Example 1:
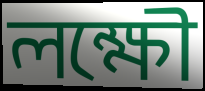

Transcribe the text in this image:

লক্ষৌ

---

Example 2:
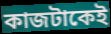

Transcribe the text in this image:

কাজটাকেই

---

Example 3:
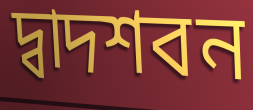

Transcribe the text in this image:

দ্বাদশবন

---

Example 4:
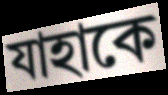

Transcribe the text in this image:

যাহাকে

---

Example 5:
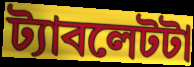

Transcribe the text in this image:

ট্যাবলেটটা